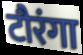
टौरंगा